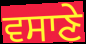
ਵਸਾਣੇ